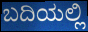
ಬದಿಯಲ್ಲಿ